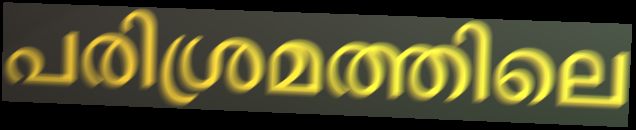
പരിശ്രമത്തിലെ